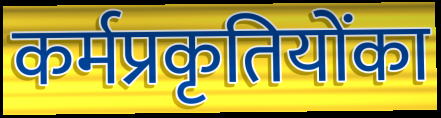
कर्मप्रकृतियोंका